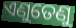
ଏଣୁତେଣୁ